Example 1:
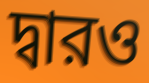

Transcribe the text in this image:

দ্বারও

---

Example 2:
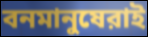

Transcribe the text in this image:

বনমানুষেরাই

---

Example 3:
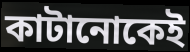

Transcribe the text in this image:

কাটানোকেই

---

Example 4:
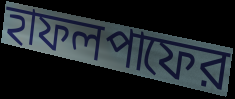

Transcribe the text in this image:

হাফলপাফের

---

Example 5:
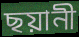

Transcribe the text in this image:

ছয়ানী